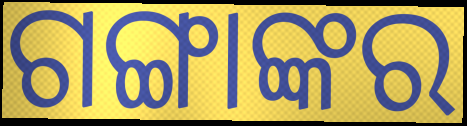
ଗଙ୍ଗାଙ୍କର